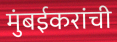
मुंबईकरांची